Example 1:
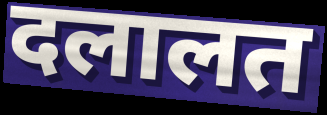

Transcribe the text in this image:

दलालत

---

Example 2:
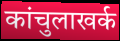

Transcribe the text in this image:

कांचुलाखर्क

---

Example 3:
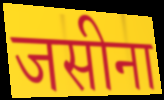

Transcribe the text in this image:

जसीना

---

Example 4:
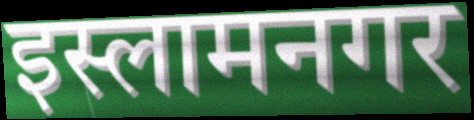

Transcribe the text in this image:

इस्लामनगर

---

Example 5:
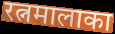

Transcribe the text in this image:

रत्नमालाका